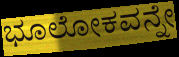
ಭೂಲೋಕವನ್ನೇ